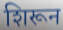
शिरून